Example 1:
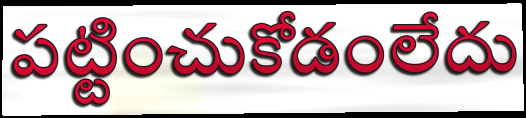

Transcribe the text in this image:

పట్టించుకోడంలేదు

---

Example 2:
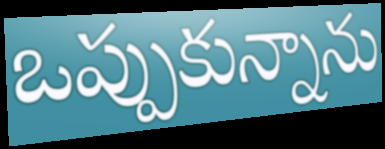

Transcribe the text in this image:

ఒప్పుకున్నాను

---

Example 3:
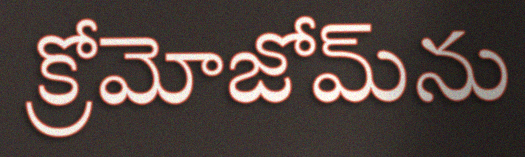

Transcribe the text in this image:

క్రోమోజోమ్‌ను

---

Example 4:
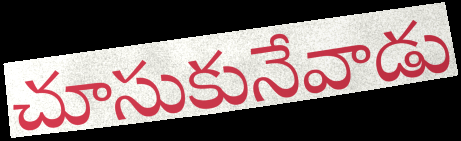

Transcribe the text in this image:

చూసుకునేవాడు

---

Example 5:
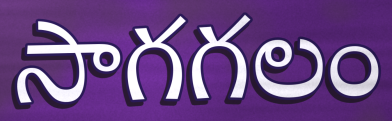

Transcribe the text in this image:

సాగగలం